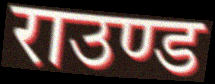
राउण्ड